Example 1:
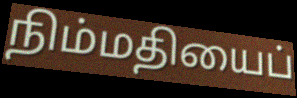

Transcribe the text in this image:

நிம்மதியைப்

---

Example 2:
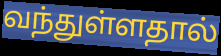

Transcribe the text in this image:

வந்துள்ளதால்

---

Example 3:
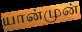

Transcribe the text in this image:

யான்முன்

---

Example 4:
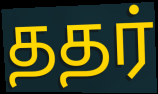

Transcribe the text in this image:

ததர்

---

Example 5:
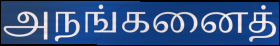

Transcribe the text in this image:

அநங்கனைத்